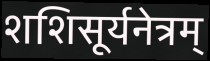
शशिसूर्यनेत्रम्